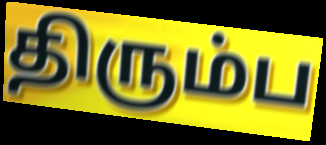
திரும்ப